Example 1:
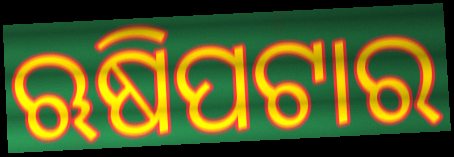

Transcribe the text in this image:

ଋଷିପଟାର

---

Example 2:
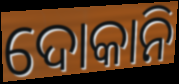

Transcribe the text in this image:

ଦୋକାନି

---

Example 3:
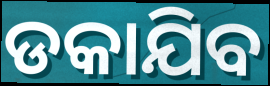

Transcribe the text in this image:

ଡକାଯିବ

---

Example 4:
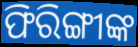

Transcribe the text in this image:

ଫିରିଙ୍ଗୀଙ୍କ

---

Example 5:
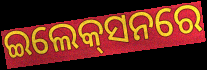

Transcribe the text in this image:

ଇଲେକ୍‍ସନରେ